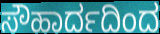
ಸೌಹಾರ್ದದಿಂದ